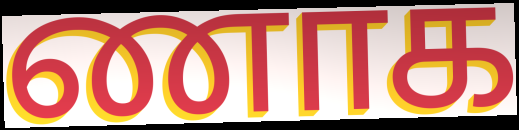
ணாக